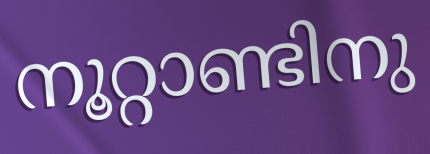
നൂറ്റാണ്ടിനു